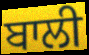
ਬਾਲੀ